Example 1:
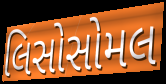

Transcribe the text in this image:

લિસોસોમલ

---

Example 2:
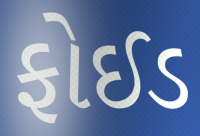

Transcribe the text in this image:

ફોઈડ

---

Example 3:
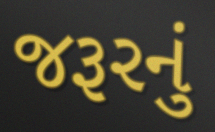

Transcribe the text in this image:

જરૂરનું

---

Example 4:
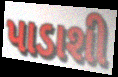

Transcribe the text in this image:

પાડાશી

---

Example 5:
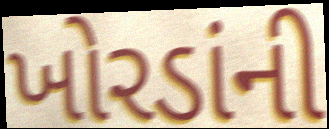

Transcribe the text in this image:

ખોરડાંની